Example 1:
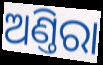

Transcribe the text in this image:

ଅଣ୍ତିରା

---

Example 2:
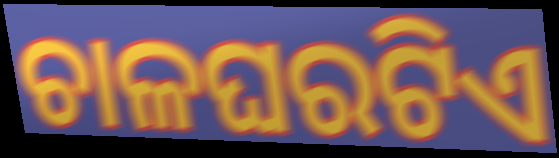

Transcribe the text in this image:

ଚାଳଘରଟିଏ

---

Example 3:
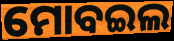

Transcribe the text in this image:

ମୋବଇଲ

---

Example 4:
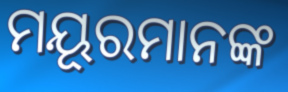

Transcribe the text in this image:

ମୟୂରମାନଙ୍କ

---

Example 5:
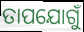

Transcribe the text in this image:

ତାପଯୋଗୁଁ